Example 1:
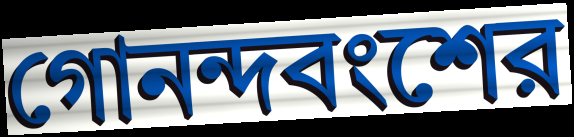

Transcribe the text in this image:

গোনন্দবংশের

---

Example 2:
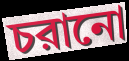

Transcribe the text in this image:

চরানো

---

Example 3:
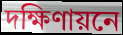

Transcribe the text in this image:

দক্ষিণায়নে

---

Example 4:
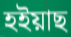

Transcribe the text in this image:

হইয়াছ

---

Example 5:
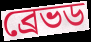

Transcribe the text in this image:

ব্রেভড